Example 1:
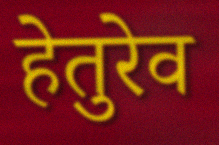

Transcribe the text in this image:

हेतुरेव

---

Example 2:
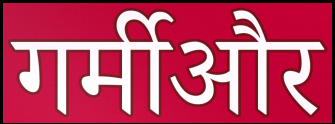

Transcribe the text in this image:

गर्मीऔर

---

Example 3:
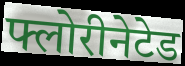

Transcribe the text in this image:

फ्लोरीनेटेड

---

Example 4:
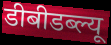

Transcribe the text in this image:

डीबीडब्ल्यू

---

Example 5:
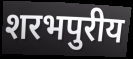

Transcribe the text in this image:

शरभपुरीय